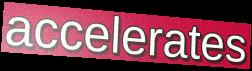
accelerates